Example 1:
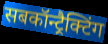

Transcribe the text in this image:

सबकॉन्ट्रैक्टिंग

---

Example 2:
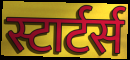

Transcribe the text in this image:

स्टार्टर्स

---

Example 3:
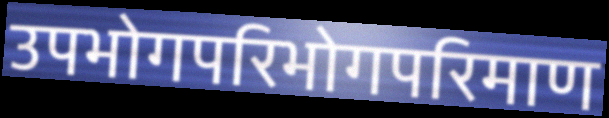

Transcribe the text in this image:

उपभोगपरिभोगपरिमाण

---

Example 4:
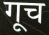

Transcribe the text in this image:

गूच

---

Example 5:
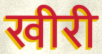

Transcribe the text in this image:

खीरी